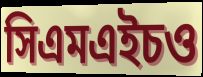
সিএমএইচও